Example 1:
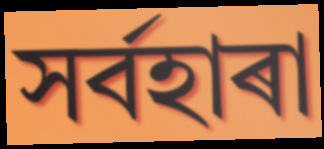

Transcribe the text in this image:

সৰ্বহাৰা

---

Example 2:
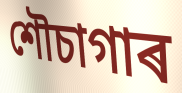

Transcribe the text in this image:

শৌচাগাৰ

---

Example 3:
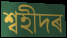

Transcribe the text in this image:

শ্বহীদৰ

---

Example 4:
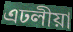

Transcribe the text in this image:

এঢলীয়া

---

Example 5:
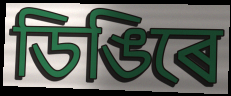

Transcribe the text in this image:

ডিঙিৰে